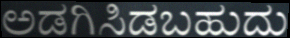
ಅಡಗಿಸಿಡಬಹುದು